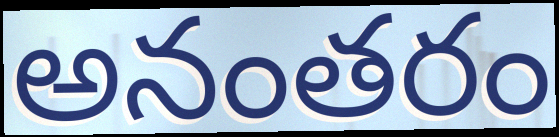
అనంతరం